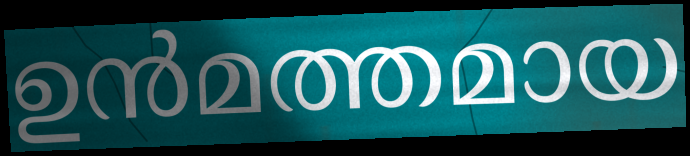
ഉൻമത്തമായ